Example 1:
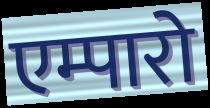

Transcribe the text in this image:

एम्पारो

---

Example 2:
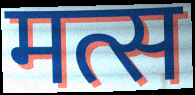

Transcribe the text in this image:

मत्स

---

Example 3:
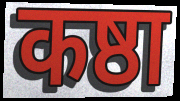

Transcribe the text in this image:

कष्ठा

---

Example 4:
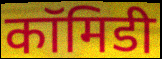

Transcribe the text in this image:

कॉमिडी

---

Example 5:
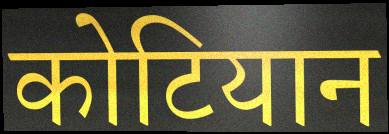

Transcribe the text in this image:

कोटियान